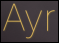
Ayr